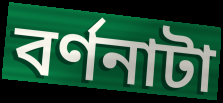
বর্ণনাটা